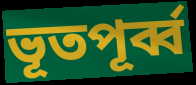
ভূতপূর্ব্ব